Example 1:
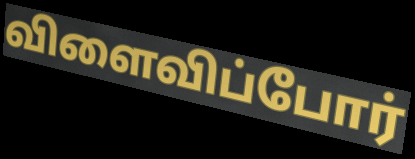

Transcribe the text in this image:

விளைவிப்போர்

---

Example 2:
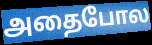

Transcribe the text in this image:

அதைபோல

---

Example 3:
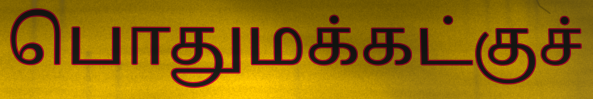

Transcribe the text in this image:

பொதுமக்கட்குச்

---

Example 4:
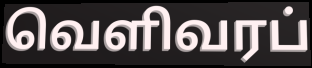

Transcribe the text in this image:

வெளிவரப்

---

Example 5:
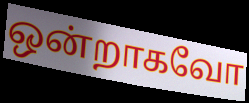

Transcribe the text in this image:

ஒன்றாகவோ